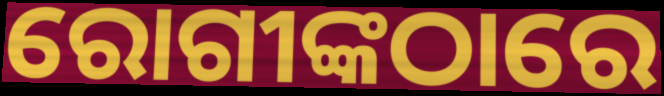
ରୋଗୀଙ୍କଠାରେ